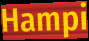
Hampi